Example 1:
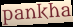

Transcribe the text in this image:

pankha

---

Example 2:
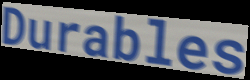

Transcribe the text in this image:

Durables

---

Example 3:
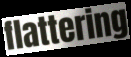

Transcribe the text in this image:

flattering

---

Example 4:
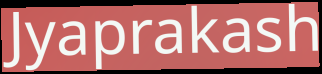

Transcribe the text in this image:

Jyaprakash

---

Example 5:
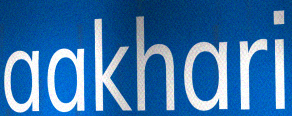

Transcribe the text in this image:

aakhari